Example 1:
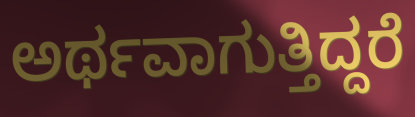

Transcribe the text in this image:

ಅರ್ಥವಾಗುತ್ತಿದ್ದರೆ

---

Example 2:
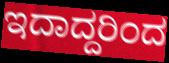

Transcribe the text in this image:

ಇದಾದ್ದರಿಂದ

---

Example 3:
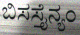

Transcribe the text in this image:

ಬಿಸಸ್ತೈನ್ಯಂ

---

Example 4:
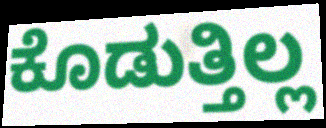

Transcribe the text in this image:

ಕೊಡುತ್ತಿಲ್ಲ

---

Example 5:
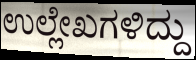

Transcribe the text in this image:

ಉಲ್ಲೇಖಗಳಿದ್ದು